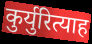
कुर्युरित्याह